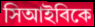
সিআইবিকে